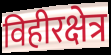
विहीरक्षेत्र